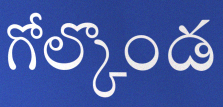
గోల్కొండ